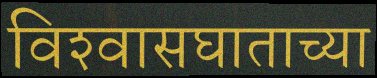
विश्वासघाताच्या